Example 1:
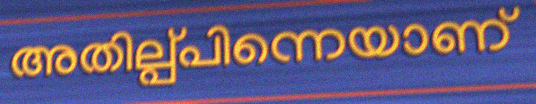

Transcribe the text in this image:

അതില്പ്പിന്നെയാണ്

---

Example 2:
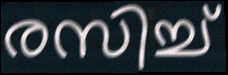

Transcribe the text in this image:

രസിച്ച്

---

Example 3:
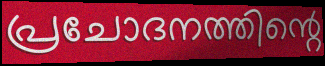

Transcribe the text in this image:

പ്രചോദനത്തിന്റെ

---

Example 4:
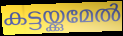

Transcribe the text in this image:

കട്ടയ്ക്കുമേൽ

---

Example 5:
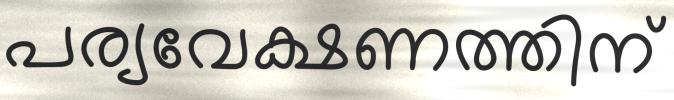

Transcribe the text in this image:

പര്യവേക്ഷണത്തിന്